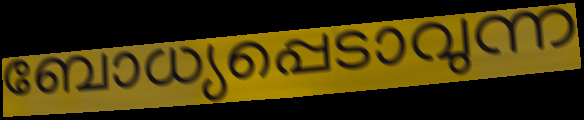
ബോധ്യപ്പെടാവുന്ന